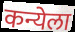
कन्येला